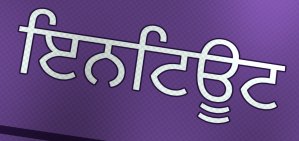
ਇਨਟਿਊਟ